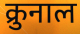
क्रुनाल